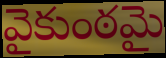
వైకుంఠమై